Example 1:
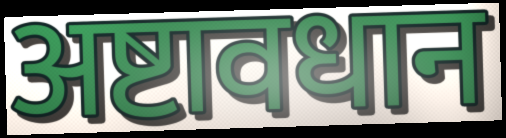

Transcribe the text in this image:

अष्टावधान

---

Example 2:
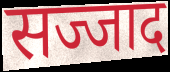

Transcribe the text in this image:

सज्जाद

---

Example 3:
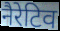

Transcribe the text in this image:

नैरेटिव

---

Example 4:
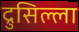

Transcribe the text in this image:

द्रुसिल्ला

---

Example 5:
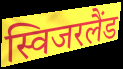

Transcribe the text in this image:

स्विजरलैंड